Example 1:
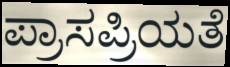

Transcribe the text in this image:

ಪ್ರಾಸಪ್ರಿಯತೆ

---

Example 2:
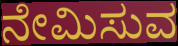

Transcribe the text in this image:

ನೇಮಿಸುವ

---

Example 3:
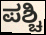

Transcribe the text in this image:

ಪಶ್ಚಿ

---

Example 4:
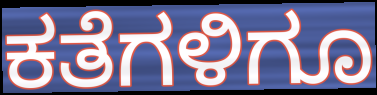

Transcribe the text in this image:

ಕತೆಗಳಿಗೂ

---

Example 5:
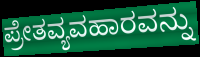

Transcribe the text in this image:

ಪ್ರೇತವ್ಯವಹಾರವನ್ನು